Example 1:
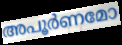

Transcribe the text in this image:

അപൂർണമോ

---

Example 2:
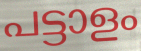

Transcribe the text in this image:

പട്ടാളം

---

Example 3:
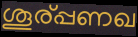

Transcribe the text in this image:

ശൂര്പ്പണഖ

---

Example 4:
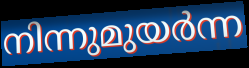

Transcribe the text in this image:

നിന്നുമുയർന്ന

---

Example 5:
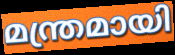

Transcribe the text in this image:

മന്ത്രമായി